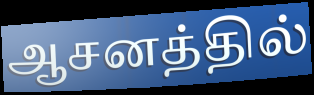
ஆசனத்தில்